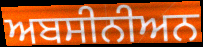
ਅਬਸੀਨੀਅਨ